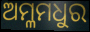
ଅମ୍ଳମଧୁର